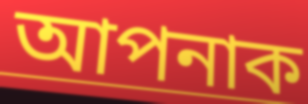
আপনাক